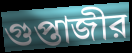
গুপ্তাজীর